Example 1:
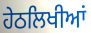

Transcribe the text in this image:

ਹੇਠਲਿਖੀਆਂ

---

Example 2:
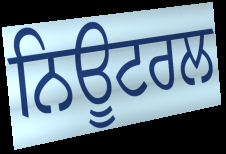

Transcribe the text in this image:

ਨਿਊਟਰਲ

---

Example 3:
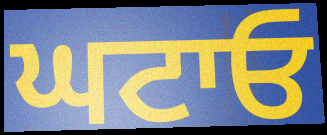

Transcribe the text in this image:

ਘਟਾਓ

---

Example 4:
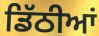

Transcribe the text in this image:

ਡਿੱਠੀਆਂ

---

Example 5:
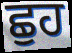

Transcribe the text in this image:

ਛੁਹ